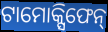
ଟାମୋକ୍ସିଫେନ୍